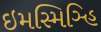
ઇમસ્મિઞ્હિ